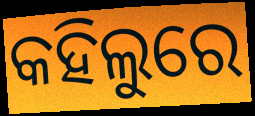
କହିଲୁରେ